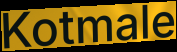
Kotmale